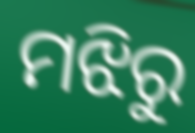
ମଝିରୁ